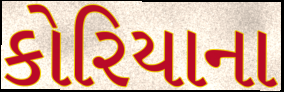
કોરિયાના